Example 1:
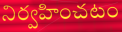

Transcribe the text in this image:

నిర్వహించటం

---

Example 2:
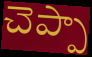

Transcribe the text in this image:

చెప్పా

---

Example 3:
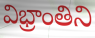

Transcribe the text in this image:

విభ్రాంతిని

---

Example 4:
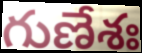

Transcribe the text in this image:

గుణేశః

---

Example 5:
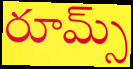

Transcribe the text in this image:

రూమ్స్